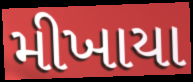
મીખાયા